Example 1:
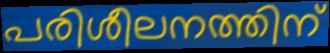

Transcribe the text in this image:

പരിശീലനത്തിന്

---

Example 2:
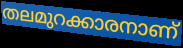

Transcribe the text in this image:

തലമുറക്കാരനാണ്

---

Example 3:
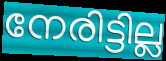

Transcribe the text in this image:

നേരിട്ടില്ല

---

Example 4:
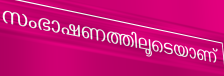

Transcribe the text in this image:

സംഭാഷണത്തിലൂടെയാണ്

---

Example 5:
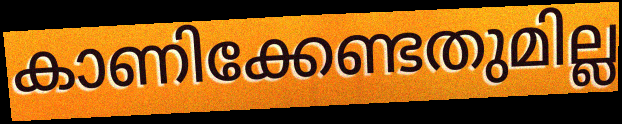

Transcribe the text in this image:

കാണിക്കേണ്ടതുമില്ല